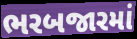
ભરબજારમાં